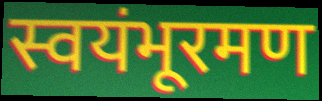
स्वयंभूरमण